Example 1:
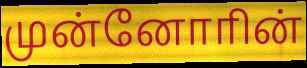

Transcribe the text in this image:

முன்னோரின்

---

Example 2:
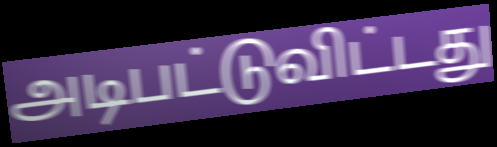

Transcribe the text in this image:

அடிபட்டுவிட்டது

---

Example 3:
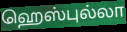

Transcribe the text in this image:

ஹெஸ்புல்லா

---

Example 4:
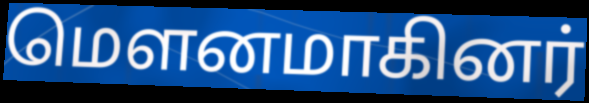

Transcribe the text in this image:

மௌனமாகினர்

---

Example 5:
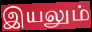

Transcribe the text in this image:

இயலும்